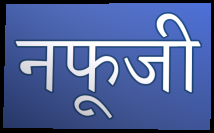
नफूजी